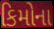
કિમોના